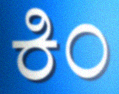
ಕಿಂ